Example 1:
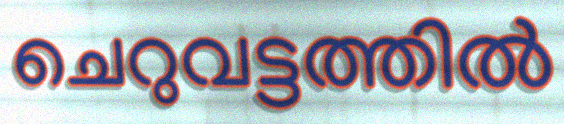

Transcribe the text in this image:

ചെറുവട്ടത്തിൽ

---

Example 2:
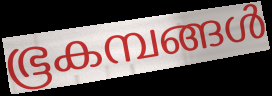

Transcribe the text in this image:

ഭൂകമ്പങ്ങൾ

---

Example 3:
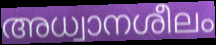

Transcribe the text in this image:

അധ്വാനശീലം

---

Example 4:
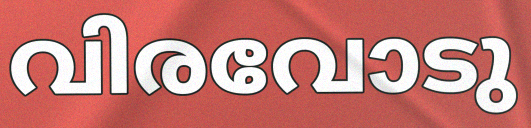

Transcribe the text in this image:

വിരവോടു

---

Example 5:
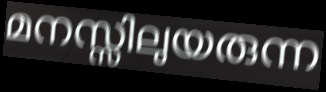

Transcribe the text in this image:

മനസ്സിലുയരുന്ന